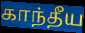
காந்தீய